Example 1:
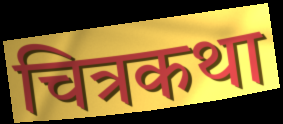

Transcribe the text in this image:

चित्रकथा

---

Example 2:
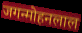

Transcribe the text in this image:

जगन्मोहनलाल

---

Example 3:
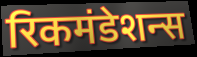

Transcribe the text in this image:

रिकमंडेशन्स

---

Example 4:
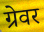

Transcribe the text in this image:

ग्रेवर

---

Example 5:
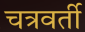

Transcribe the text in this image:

चत्रवर्ती